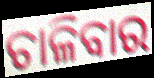
ଚାଳିବାର